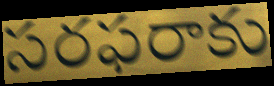
సరఫరాకు